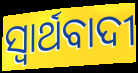
ସ୍ୱାର୍ଥବାଦୀ